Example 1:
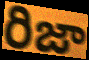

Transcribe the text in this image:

రిజా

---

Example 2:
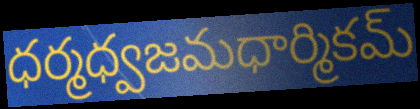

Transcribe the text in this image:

ధర్మధ్వజమధార్మికమ్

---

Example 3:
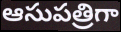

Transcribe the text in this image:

ఆసుపత్రిగా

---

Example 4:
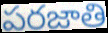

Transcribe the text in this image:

పరజాతి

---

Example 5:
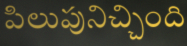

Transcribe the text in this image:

పిలుపునిచ్చింది